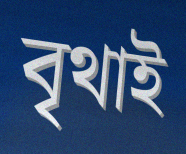
বৃথাই